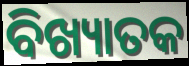
ବିଖ୍ୟାତକ